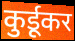
कुर्डूकर